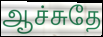
ஆச்சுதே